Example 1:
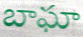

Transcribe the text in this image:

బాఘా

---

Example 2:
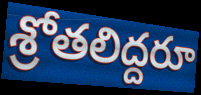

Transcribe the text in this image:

శ్రోతలిద్దరూ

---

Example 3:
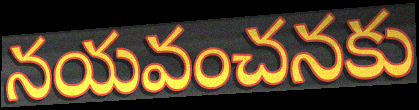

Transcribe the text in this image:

నయవంచనకు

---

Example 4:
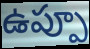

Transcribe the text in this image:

ఉప్పూ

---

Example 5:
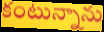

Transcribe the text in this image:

కంటున్నాను